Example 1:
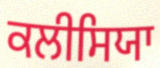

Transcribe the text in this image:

ਕਲੀਸਿਯਾ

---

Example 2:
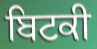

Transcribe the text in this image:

ਬਿਟਕੀ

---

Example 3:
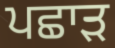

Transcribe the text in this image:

ਪਛਾੜ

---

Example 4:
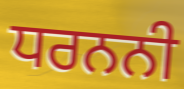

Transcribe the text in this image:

ਧਰਨਨੀ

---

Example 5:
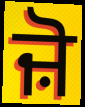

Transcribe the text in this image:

ਜ਼ੋ